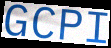
GCPI